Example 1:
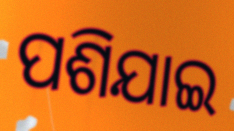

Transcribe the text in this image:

ପଶିଯାଇ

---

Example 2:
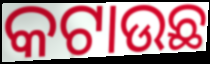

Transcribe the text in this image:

କଟାଉଛ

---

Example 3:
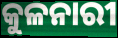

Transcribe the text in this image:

କୁଳନାରୀ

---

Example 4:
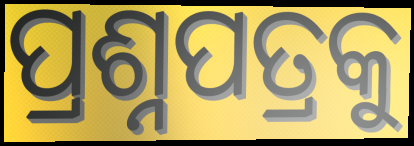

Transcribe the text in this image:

ପ୍ରଶ୍ନପତ୍ରକୁ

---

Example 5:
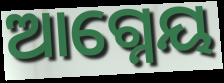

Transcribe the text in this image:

ଆଗ୍ନେୟ